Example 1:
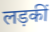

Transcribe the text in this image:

लड़कीं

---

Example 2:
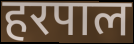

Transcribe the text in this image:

हरपाल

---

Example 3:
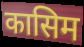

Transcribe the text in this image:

कासिम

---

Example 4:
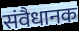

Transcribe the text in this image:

संवैधानक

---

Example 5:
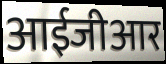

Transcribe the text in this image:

आईजीआर